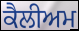
ਕੈਲੀਅਮ